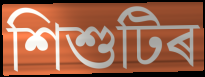
শিশুটিৰ